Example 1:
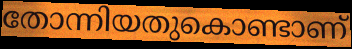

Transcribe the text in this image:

തോന്നിയതുകൊണ്ടാണ്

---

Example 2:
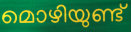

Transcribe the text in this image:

മൊഴിയുണ്ട്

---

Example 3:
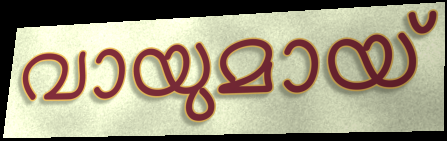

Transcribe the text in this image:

വായുമായ്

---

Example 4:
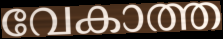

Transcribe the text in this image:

വേകാത്ത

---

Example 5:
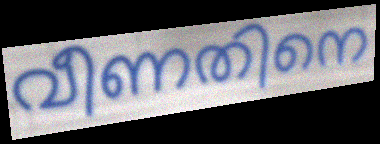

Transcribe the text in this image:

വീണതിനെ